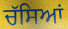
ਚੱਸਿਆਂ